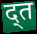
द्त